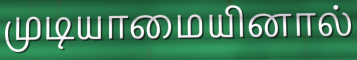
முடியாமையினால்